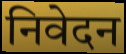
निवेदन